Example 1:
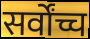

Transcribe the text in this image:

सर्वोंच्च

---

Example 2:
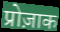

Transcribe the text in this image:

प्रोज़ाक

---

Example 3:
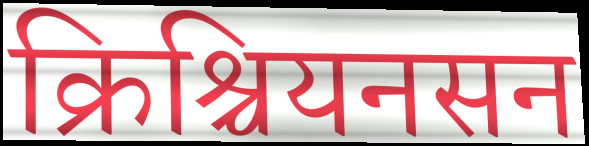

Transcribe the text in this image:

क्रिश्चियनसन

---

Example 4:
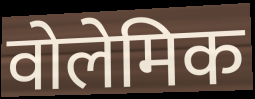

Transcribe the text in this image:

वोलेमिक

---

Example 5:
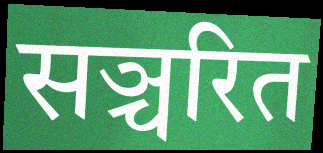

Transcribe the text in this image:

सञ्चरित